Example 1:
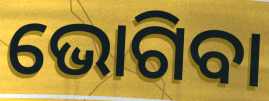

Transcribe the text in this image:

ଭୋଗିବା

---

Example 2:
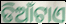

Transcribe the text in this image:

ଡିଆଁଟାଏ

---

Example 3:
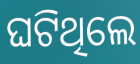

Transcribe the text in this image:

ଘଟିଥିଲେ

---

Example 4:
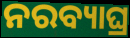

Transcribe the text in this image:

ନରବ୍ୟାଘ୍ର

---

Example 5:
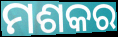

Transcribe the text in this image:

ମଶକର